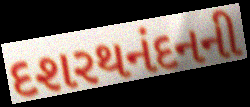
દશરથનંદનની